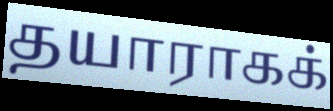
தயாராகக்